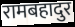
रामबहादुर